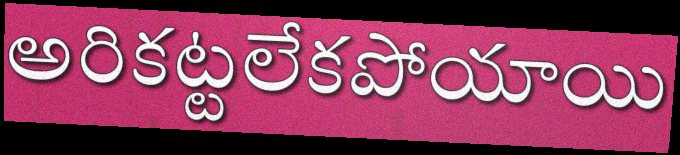
అరికట్టలేకపోయాయి